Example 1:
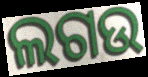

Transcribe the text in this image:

ଲଗଉ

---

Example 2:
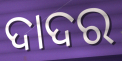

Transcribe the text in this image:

ଦାଦର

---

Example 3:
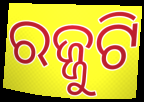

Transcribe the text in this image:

ରଜ୍ଜୁଟି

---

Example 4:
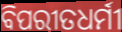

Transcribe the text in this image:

ବିପରୀତଧର୍ମୀ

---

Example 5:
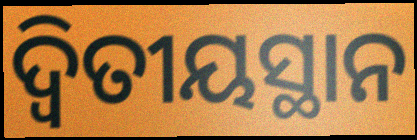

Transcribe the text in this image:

ଦ୍ୱିତୀୟସ୍ଥାନ